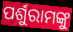
ପର୍ଶୁରାମଙ୍କୁ